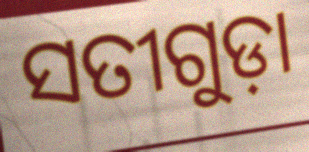
ସତୀଗୁଡ଼ା